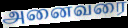
அனைவரை